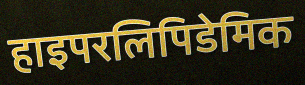
हाइपरलिपिडेमिक